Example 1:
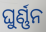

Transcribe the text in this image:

ଘୁର୍ଣ୍ଣନ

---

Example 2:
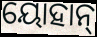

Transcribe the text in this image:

ୟୋହାନ୍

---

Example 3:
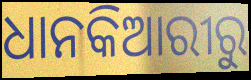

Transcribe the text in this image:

ଧାନକିଆରୀରୁ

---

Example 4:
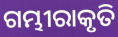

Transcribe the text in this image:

ଗମ୍ଭୀରାକୃତି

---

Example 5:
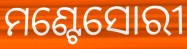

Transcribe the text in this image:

ମଣ୍ଟେସୋରୀ